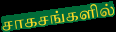
சாகசங்களில்